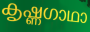
കൃഷ്ണഗാഥാ